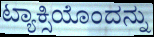
ಟ್ಯಾಕ್ಸಿಯೊಂದನ್ನು